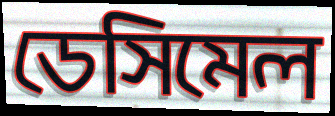
ডেসিমেল